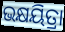
ଭକ୍ଷୟିତ୍ରା